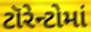
ટૉરેન્ટોમાં